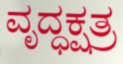
ವೃದ್ಧಕ್ಷತ್ರ